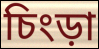
চিংড়া